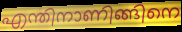
എന്തിനാണിങ്ങിനെ